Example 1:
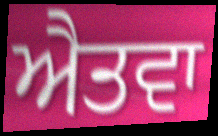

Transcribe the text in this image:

ਐਤਵਾ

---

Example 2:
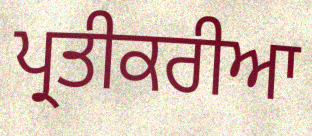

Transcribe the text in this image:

ਪ੍ਰਤੀਕਰੀਆ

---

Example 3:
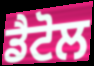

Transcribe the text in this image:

ਡੈਟੋਲ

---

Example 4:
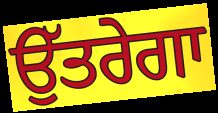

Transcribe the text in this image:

ਉੱਤਰੇਗਾ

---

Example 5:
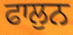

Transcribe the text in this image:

ਫਾਲੁਨ